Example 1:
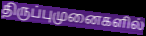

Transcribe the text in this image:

திருப்புமுனைகளில்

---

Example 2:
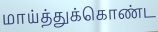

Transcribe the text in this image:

மாய்த்துக்கொண்ட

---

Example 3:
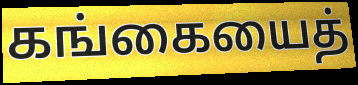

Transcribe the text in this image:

கங்கையைத்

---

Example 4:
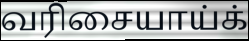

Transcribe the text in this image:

வரிசையாய்க்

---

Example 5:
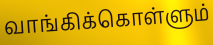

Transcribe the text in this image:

வாங்கிக்கொள்ளும்